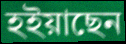
হইয়াছেন